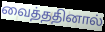
வைத்ததினால்